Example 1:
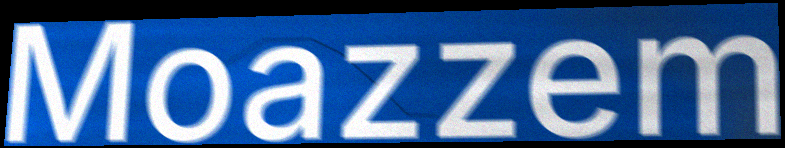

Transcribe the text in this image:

Moazzem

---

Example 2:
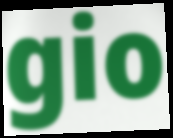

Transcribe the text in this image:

gio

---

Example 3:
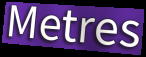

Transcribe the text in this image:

Metres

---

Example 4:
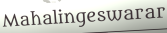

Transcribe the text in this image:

Mahalingeswarar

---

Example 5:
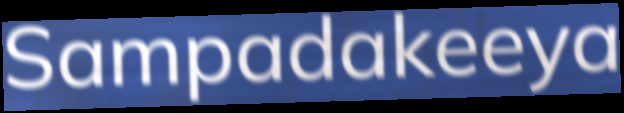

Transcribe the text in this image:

Sampadakeeya